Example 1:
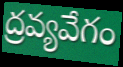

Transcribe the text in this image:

ద్రవ్యవేగం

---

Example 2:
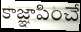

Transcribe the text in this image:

కాజ్ఞాపించే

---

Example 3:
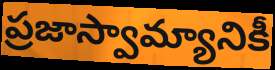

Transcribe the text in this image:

ప్రజాస్వామ్యానికీ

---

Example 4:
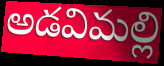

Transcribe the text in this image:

అడవిమల్లి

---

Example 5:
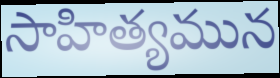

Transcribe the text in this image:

సాహిత్యమున